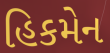
હિકમેન